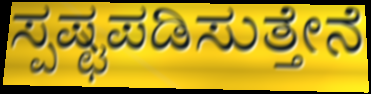
ಸ್ಪಷ್ಟಪಡಿಸುತ್ತೇನೆ